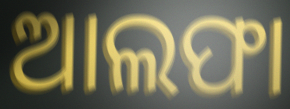
ଆଲଫା